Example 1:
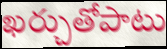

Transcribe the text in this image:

ఖర్చుతోపాటు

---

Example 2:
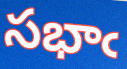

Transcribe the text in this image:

సభాఁ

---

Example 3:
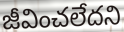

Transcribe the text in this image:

జీవించలేదని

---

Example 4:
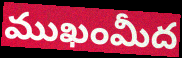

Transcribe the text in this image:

ముఖంమీద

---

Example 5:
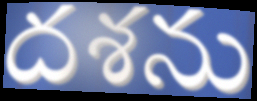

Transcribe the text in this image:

దశను